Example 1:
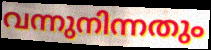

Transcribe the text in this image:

വന്നുനിന്നതും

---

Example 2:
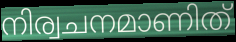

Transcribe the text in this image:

നിര്വചനമാണിത്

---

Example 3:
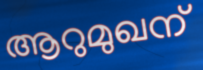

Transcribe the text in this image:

ആറുമുഖന്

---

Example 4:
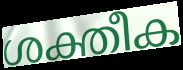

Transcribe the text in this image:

ശക്തീക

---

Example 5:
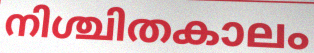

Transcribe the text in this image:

നിശ്ചിതകാലം